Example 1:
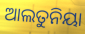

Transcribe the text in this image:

ଆଲତୁନିୟା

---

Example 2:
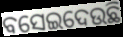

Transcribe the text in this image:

ବସେଇଦେଉଛି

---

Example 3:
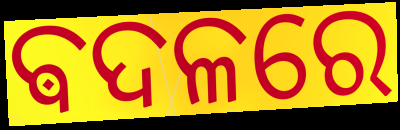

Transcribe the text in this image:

ଵଦଳରେ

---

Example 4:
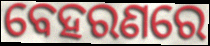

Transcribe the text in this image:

ବେହରଣରେ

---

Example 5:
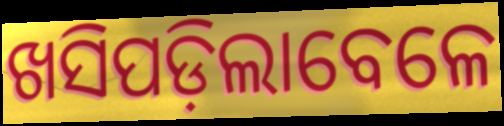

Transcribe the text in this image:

ଖସିପଡ଼ିଲାବେଳେ